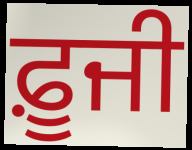
ਫ਼ੂਜੀ